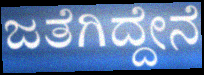
ಜತೆಗಿದ್ದೇನೆ